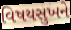
વિષયસુખને